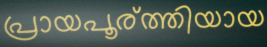
പ്രായപൂര്ത്തിയായ